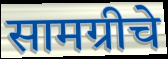
सामग्रीचे